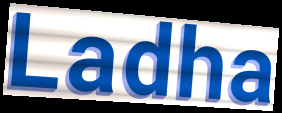
Ladha